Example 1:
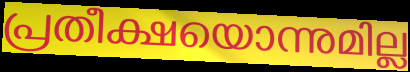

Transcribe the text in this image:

പ്രതീക്ഷയൊന്നുമില്ല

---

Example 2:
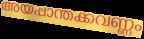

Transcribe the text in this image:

അയപ്പാന്തക്കവണ്ണം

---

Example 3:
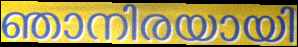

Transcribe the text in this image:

ഞാനിരയായി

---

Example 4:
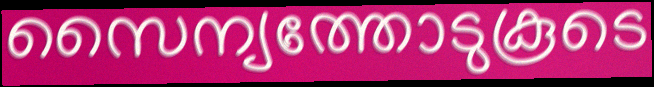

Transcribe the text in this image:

സൈന്യത്തോടുകൂടെ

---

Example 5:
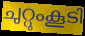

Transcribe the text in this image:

ചുറ്റുംകൂടി